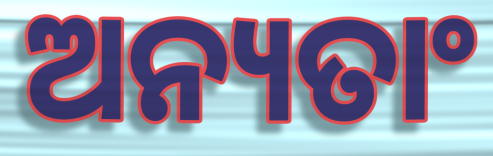
ଅନ୍ୟତାଂ